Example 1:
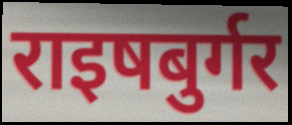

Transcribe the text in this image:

राइषबुर्गर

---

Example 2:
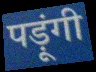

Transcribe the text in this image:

पड़ूंगी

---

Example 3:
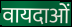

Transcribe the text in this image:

वायदाओं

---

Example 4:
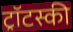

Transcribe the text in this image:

ट्रॉटस्की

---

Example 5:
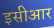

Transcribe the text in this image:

इसीआर